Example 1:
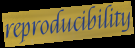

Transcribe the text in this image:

reproducibility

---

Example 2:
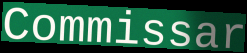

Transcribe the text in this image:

Commissar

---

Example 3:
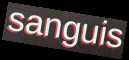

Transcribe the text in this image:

sanguis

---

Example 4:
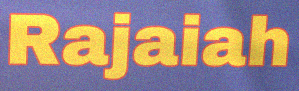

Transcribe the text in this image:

Rajaiah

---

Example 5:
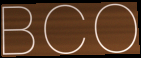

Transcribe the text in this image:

BCO